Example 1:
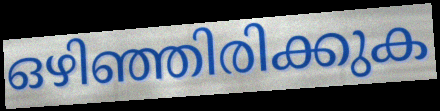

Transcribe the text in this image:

ഒഴിഞ്ഞിരിക്കുക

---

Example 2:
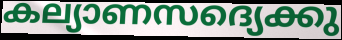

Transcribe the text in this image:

കല്യാണസദ്യെക്കു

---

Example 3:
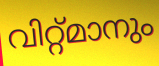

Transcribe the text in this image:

വിറ്റ്മാനും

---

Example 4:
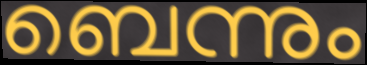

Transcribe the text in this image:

ബെന്നും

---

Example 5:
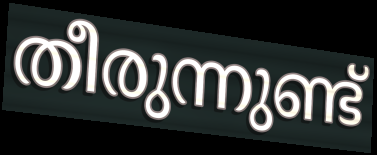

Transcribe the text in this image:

തീരുന്നുണ്ട്